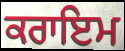
ਕਰਾਇਮ